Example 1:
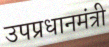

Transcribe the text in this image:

उपप्रधानमंत्री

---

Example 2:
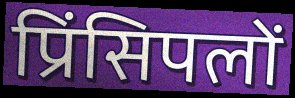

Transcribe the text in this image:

प्रिंसिपलों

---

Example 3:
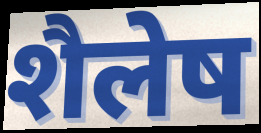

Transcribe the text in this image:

शैलेष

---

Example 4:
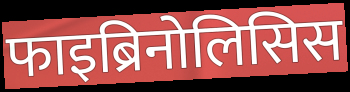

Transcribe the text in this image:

फाइब्रिनोलिसिस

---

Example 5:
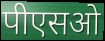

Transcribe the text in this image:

पीएसओ